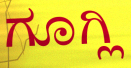
ಗೂಗ್ಲಿ